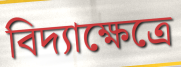
বিদ্যাক্ষেত্রে